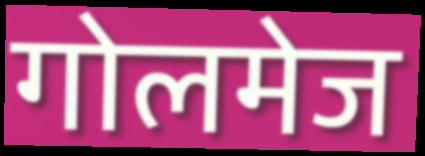
गोलमेज